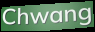
Chwang